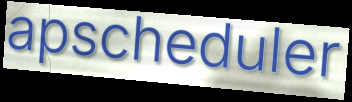
apscheduler